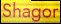
Shagor